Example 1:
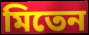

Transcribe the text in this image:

মিতেন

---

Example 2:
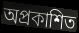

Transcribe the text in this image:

অপ্রকাশিত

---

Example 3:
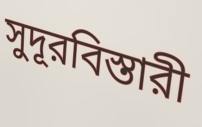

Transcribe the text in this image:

সুদূরবিস্তারী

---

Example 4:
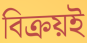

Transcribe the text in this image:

বিক্রয়ই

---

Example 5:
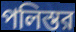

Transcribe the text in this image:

পলিস্তর